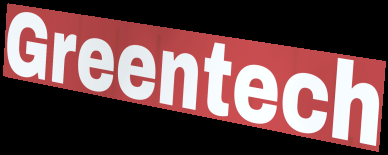
Greentech